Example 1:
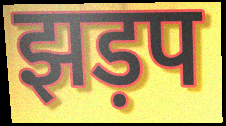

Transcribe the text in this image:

झड़प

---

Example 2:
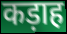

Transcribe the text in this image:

कड़ाह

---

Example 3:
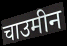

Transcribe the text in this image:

चाउमीन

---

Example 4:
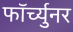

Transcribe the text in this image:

फॉर्च्युनर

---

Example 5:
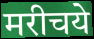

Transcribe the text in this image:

मरीचये